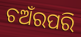
ଚଅଁରପରି